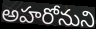
అహరోనుని